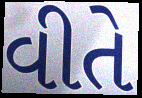
વીતે